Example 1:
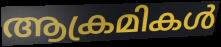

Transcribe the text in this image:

ആക്രമികൾ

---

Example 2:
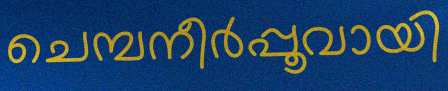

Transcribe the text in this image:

ചെമ്പനീർപ്പൂവായി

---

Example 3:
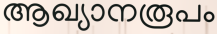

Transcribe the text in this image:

ആഖ്യാനരൂപം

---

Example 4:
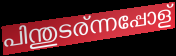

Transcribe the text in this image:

പിന്തുടര്ന്നപ്പോള്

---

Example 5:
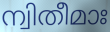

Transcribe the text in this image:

ന്വിതീമാഃ